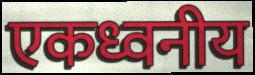
एकध्वनीय